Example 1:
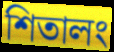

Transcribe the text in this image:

শিতালং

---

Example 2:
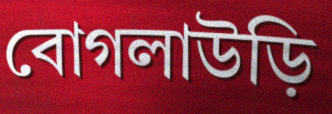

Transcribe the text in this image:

বোগলাউড়ি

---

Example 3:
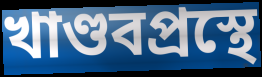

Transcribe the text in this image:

খাণ্ডবপ্রস্থে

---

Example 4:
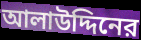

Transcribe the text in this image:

আলাউদ্দিনের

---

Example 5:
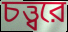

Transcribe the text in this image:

চত্ত্বরে